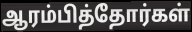
ஆரம்பித்தோர்கள்